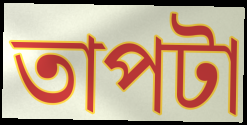
তাপটা